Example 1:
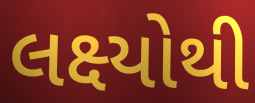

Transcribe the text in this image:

લક્ષ્યોથી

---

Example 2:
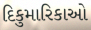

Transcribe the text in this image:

દિકુમારિકાઓ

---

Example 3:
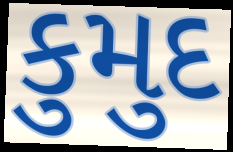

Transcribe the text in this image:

કુમુદ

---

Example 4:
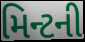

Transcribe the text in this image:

મિન્ટની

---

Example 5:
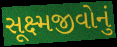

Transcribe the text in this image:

સૂક્ષ્મજીવોનું